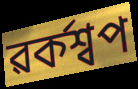
ৱৰ্কশ্বপ